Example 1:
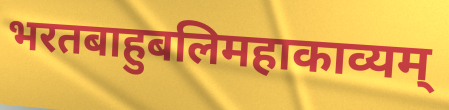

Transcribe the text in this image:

भरतबाहुबलिमहाकाव्यम्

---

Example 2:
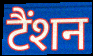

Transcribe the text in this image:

टैंशन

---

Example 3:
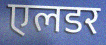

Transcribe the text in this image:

एलडर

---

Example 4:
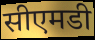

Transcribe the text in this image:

सीएमडी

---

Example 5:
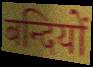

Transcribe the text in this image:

बन्दियों